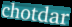
chotdar